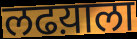
लढय़ाला